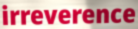
irreverence